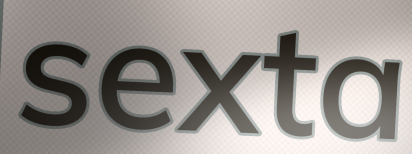
sexta